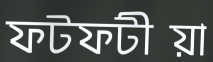
ফটফটীয়া